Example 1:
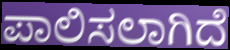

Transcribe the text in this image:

ಪಾಲಿಸಲಾಗಿದೆ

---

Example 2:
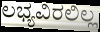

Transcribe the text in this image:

ಲಭ್ಯವಿರಲಿಲ್ಲ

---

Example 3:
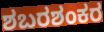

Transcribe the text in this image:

ಶಬರಶಂಕರ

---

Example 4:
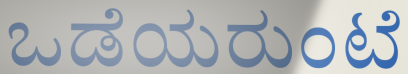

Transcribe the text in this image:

ಒಡೆಯರುಂಟೆ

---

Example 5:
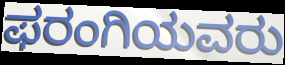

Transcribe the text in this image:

ಫರಂಗಿಯವರು